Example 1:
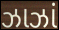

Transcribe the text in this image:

ઝાઝાં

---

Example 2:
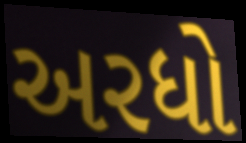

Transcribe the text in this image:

અરધો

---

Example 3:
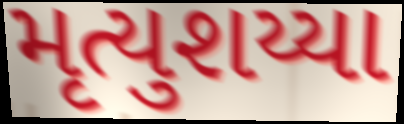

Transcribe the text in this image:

મૃત્યુશય્યા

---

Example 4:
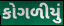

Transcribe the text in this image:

કોગળીયું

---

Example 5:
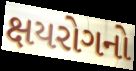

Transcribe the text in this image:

ક્ષયરોગનો